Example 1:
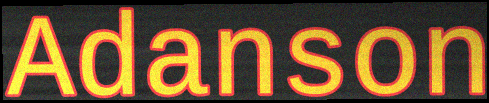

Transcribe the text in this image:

Adanson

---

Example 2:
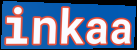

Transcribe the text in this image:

inkaa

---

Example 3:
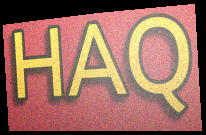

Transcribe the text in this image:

HAQ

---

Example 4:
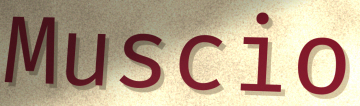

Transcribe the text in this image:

Muscio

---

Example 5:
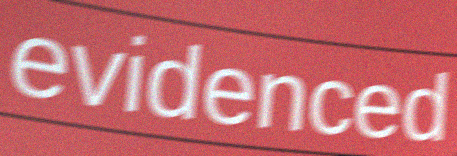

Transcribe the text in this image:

evidenced